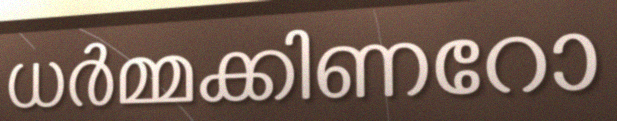
ധർമ്മക്കിണറോ